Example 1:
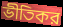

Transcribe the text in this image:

ভীতিকর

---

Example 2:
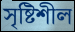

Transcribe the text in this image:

সৃষ্টিশীল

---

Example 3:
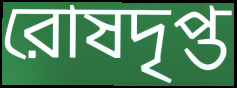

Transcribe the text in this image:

রোষদৃপ্ত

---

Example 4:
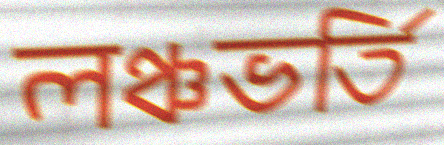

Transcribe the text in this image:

লঞ্চভর্তি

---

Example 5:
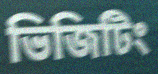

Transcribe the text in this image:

ভিজিটিং